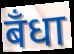
बँधा